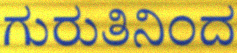
ಗುರುತಿನಿಂದ